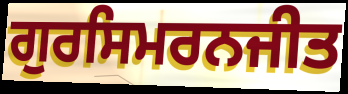
ਗੁਰਸਿਮਰਨਜੀਤ